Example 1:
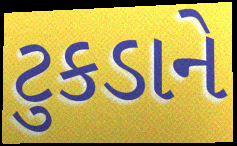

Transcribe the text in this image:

ટુકડાને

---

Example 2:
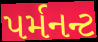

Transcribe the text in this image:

પર્મનન્ટ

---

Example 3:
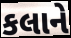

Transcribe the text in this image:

કલાને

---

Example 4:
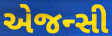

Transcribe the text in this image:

એજન્સી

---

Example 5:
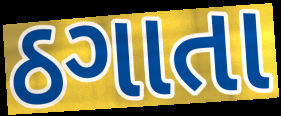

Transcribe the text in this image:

ઠગાતા